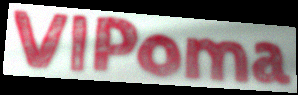
VIPoma